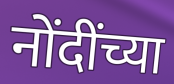
नोंदींच्या